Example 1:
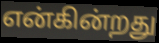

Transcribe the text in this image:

என்கின்றது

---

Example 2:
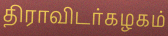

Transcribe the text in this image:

திராவிடர்கழகம்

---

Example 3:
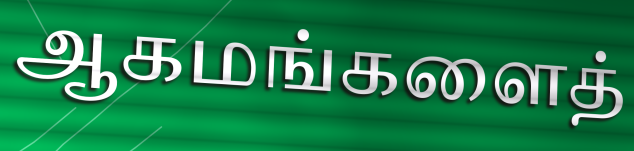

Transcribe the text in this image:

ஆகமங்களைத்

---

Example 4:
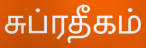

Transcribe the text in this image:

சுப்ரதீகம்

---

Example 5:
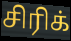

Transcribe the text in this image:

சிரிக்